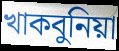
খাকবুনিয়া